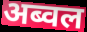
अब्वल